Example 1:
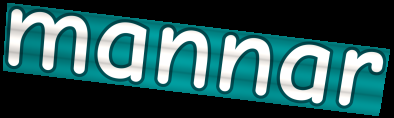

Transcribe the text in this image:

mannar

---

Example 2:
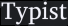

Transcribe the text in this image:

Typist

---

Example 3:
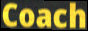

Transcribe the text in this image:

Coach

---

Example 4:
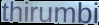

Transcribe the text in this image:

thirumbi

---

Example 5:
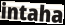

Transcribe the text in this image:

intaha